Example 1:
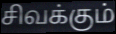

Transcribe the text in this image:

சிவக்கும்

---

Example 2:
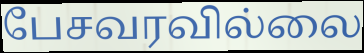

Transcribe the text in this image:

பேசவரவில்லை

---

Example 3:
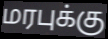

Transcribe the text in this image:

மரபுக்கு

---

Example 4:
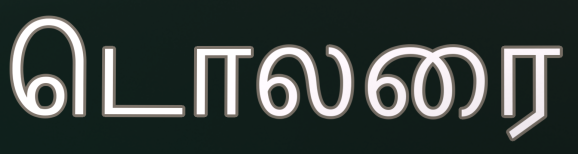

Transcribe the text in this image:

டொலரை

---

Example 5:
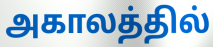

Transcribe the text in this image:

அகாலத்தில்